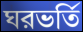
ঘরভর্তি